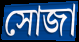
সোজা